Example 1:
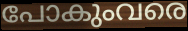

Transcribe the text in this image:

പോകുംവരെ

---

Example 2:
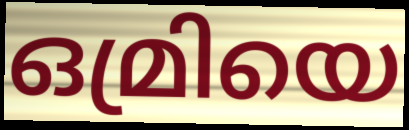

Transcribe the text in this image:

ഒമ്രിയെ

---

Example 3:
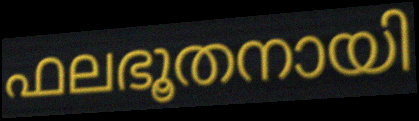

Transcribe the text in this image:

ഫലഭൂതനായി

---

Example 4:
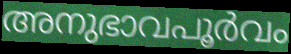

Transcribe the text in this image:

അനുഭാവപൂർവം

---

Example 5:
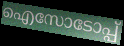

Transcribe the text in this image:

ഐസോടോപ്പ്